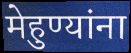
मेहुण्यांना